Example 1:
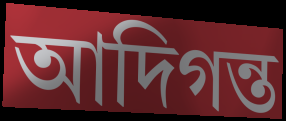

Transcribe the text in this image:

আদিগন্ত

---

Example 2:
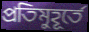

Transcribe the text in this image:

প্রতিমুহূর্তে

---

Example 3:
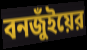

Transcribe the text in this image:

বনজুঁইয়ের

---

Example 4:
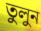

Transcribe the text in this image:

তুলুন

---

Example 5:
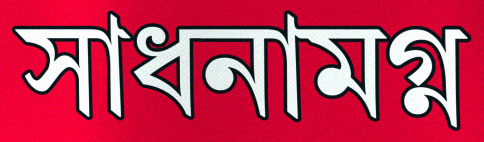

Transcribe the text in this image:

সাধনামগ্ন